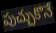
పుచ్చుకొనే